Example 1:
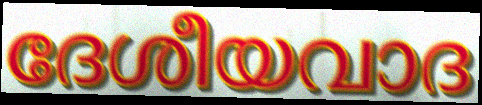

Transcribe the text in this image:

ദേശീയവാദ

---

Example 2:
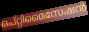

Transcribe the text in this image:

ഒപ്റ്റിമൈസേഷൻ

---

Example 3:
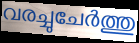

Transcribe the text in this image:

വരച്ചുചേർത്തു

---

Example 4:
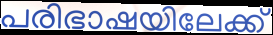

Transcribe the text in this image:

പരിഭാഷയിലേക്ക്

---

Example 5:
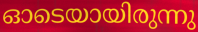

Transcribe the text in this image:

ഓടെയായിരുന്നു